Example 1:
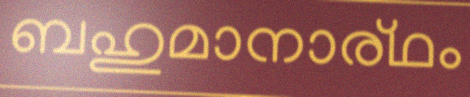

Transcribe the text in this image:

ബഹുമാനാര്ഥം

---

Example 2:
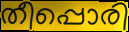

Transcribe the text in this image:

തീപ്പൊരി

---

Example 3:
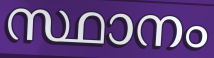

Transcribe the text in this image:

സ്ഥാനം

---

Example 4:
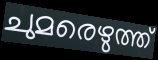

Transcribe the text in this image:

ചുമരെഴുത്ത്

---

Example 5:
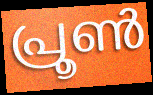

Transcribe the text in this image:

പ്രൂൺ